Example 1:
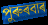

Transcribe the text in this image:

পুৰুৰবাৰ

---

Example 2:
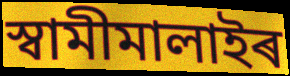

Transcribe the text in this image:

স্বামীমালাইৰ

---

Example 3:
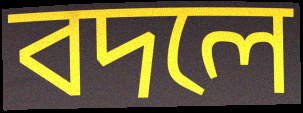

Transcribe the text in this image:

বদলে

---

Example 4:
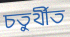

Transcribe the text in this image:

চতুৰ্থীত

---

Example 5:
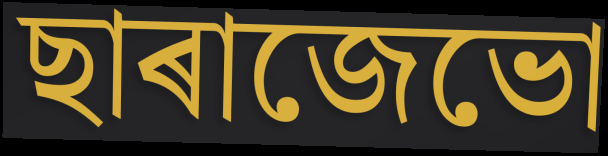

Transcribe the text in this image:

ছাৰাজেভো